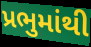
પ્રભુમાંથી